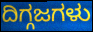
ದಿಗ್ಗಜಗಳು